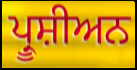
ਪ੍ਰੂਸ਼ੀਅਨ